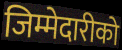
जिम्मेदारीको